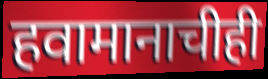
हवामानाचीही